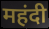
महंदी